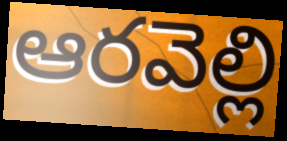
ఆరవెల్లి